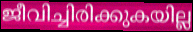
ജീവിച്ചിരിക്കുകയില്ല